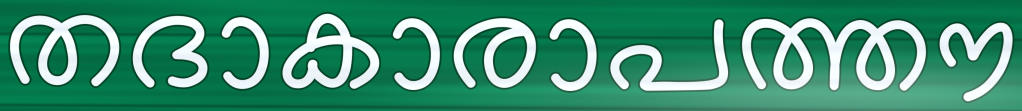
തദാകാരാപത്തൗ